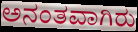
ಅನಂತವಾಗಿರು